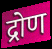
द्रोण